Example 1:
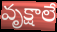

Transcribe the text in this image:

వృక్షాలే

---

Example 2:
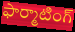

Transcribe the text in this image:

ఫార్మాటింగ్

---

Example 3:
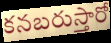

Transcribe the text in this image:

కనబరుస్తారో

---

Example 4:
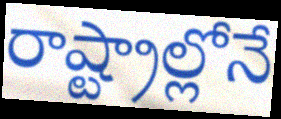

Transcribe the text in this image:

రాష్ట్రాల్లోనే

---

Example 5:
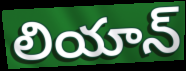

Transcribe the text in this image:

లియాన్